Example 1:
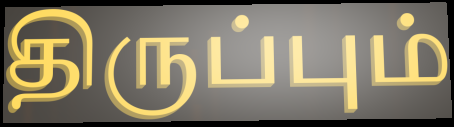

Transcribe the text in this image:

திருப்பும்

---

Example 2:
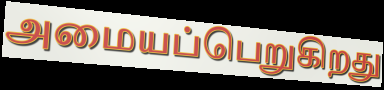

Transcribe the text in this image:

அமையப்பெறுகிறது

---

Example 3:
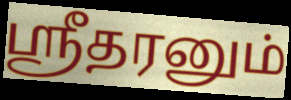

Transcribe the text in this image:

ஸ்ரீதரனும்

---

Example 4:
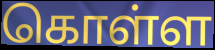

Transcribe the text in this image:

கொள்ள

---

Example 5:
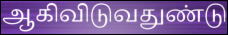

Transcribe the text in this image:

ஆகிவிடுவதுண்டு